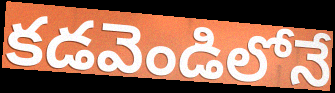
కడవెండిలోనే